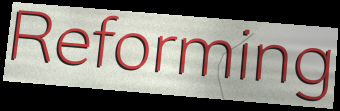
Reforming